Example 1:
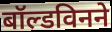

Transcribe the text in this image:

बॉल्डविनने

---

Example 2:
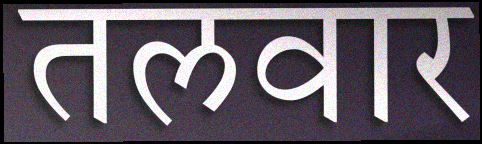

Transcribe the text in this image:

तलवार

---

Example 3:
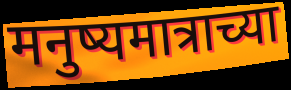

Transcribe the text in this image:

मनुष्यमात्राच्या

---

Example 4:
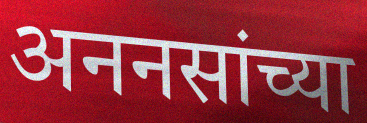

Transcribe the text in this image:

अननसांच्या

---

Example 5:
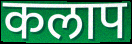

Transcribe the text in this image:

कलाप